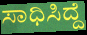
ಸಾಧಿಸಿದ್ದೆ